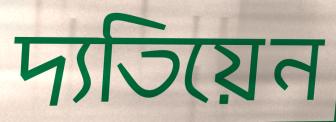
দ্যতিয়েন